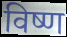
विष्ण